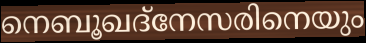
നെബൂഖദ്നേസരിനെയും